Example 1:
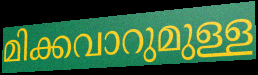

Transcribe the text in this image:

മിക്കവാറുമുള്ള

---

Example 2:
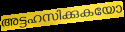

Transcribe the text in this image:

അട്ടഹസിക്കുകയോ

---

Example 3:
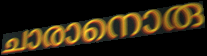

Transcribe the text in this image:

ചാരാനൊരു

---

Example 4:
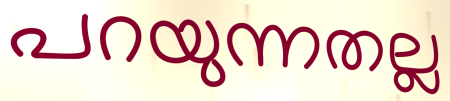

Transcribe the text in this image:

പറയുന്നതല്ല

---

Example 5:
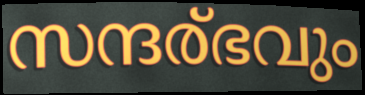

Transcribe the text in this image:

സന്ദര്ഭവും